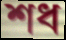
শধ